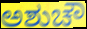
ಅಶುಚೌ